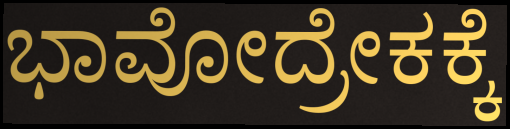
ಭಾವೋದ್ರೇಕಕ್ಕೆ